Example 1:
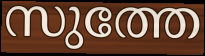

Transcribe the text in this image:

സുത്തേ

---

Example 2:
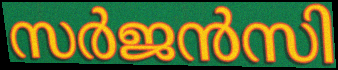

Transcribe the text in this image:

സർജൻസി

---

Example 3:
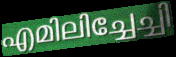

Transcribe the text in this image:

എമിലിച്ചേച്ചി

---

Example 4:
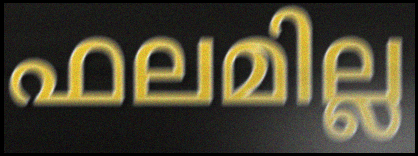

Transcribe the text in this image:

ഫലമില്ല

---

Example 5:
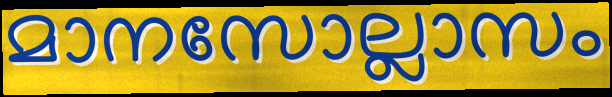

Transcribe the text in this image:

മാനസോല്ലാസം